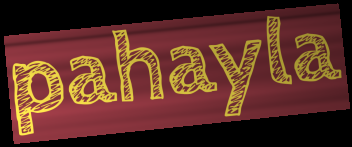
pahayla